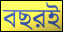
বছরই